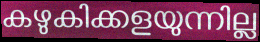
കഴുകിക്കളയുന്നില്ല